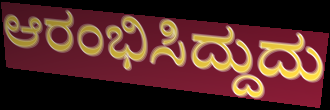
ಆರಂಭಿಸಿದ್ದುದು